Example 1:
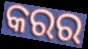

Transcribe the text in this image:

କରର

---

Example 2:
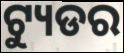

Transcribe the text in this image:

ଟ୍ୟୁଡର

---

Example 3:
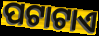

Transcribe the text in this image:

ପଟାଟାଏ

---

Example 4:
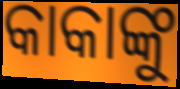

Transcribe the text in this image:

କାକାଙ୍କୁ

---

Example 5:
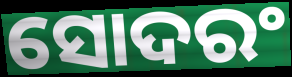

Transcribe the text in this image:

ସୋଦରଂ